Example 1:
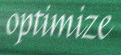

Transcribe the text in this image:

optimize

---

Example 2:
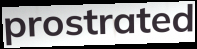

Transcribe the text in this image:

prostrated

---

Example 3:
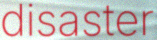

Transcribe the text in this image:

disaster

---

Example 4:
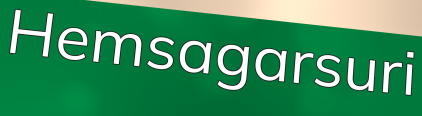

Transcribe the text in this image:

Hemsagarsuri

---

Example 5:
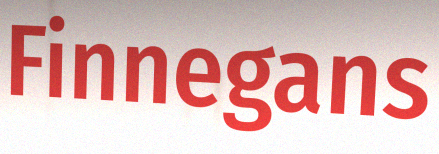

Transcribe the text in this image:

Finnegans